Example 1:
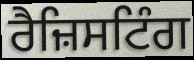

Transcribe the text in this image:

ਰੈਜ਼ਿਸਟਿੰਗ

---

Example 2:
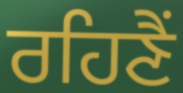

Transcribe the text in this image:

ਰਹਿਣੈਂ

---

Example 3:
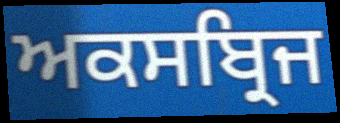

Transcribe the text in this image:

ਅਕਸਬ੍ਰਿਜ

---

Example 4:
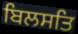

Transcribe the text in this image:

ਬਿਲਸਤਿ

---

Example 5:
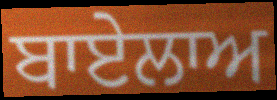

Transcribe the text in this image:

ਬਾਏਲਾਅ